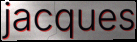
jacques